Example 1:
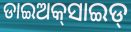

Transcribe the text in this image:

ଡାଇଅକ୍‌ସାଇଡ୍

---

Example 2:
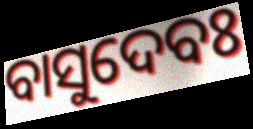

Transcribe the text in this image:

ବାସୁଦେବଃ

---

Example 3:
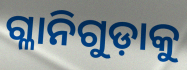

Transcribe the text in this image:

ଗ୍ଳାନିଗୁଡ଼ାକୁ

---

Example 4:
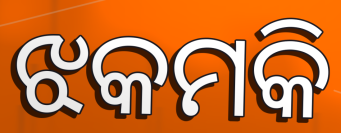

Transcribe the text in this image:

ଝକମକି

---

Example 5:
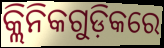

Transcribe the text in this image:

କ୍ଲିନିକଗୁଡ଼ିକରେ